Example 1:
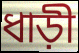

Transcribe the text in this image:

ধাড়ী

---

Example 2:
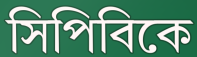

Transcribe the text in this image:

সিপিবিকে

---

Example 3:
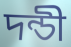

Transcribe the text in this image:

দন্ডী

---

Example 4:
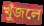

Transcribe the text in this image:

খুঁজলে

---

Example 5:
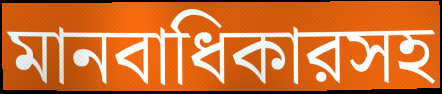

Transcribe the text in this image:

মানবাধিকারসহ